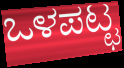
ಒಳಪಟ್ಟ